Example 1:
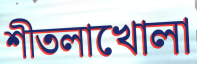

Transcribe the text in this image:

শীতলাখোলা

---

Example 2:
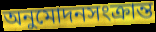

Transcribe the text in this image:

অনুমোদনসংক্রান্ত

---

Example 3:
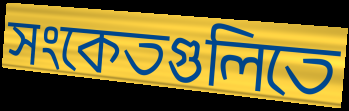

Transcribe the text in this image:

সংকেতগুলিতে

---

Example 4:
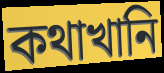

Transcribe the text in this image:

কথাখানি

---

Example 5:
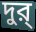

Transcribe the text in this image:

দুর্